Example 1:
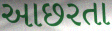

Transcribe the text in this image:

આછરતા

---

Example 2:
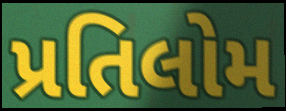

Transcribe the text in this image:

પ્રતિલોમ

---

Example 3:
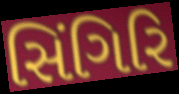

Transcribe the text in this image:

સિંગિરિ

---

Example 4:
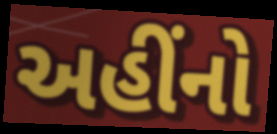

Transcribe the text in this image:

અહીંનો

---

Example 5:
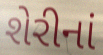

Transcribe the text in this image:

શેરીનાં